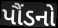
પૌંડનો